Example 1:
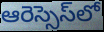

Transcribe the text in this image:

ఆరెస్సెస్‌లో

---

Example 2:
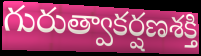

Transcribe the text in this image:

గురుత్వాకర్షణశక్తి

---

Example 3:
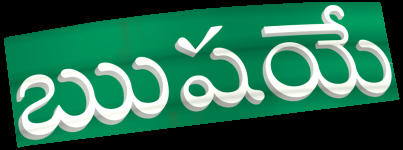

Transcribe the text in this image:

ఋషయే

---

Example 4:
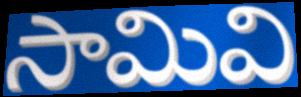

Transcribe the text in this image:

సామివి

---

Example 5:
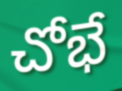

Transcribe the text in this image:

చోభే